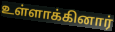
உள்ளாக்கினார்